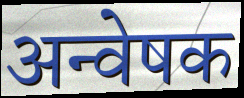
अन्वेषक